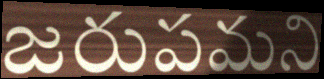
జరుపమని